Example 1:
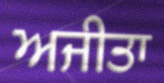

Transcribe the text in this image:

ਅਜੀਤਾ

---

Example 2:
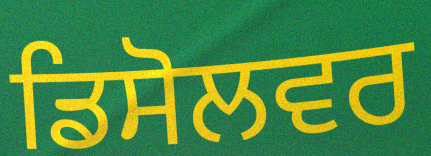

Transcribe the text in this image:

ਡਿਸੋਲਵਰ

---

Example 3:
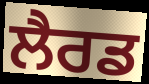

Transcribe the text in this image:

ਲੈਰਡ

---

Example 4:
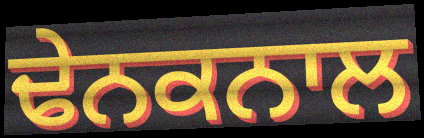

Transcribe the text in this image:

ਢੇਨਕਨਾਲ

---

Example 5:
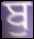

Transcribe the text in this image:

ਬੁ